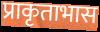
प्राकृताभास